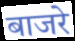
बाजरे